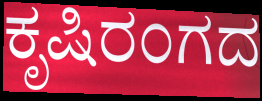
ಕೃಷಿರಂಗದ